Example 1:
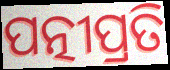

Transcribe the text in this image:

ପତ୍ନୀପ୍ରତି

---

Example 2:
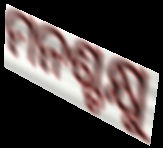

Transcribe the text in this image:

ମନଶ୍ଚକ୍ଷୁ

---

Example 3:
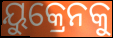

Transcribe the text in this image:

ୟୁକ୍ରେନକୁ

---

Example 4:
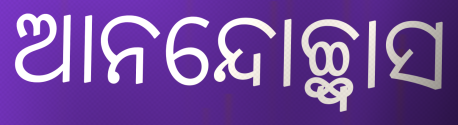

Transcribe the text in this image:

ଆନନ୍ଦୋଚ୍ଛ୍ୱାସ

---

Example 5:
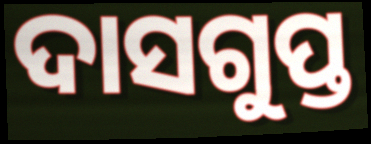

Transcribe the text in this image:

ଦାସଗୁପ୍ତ